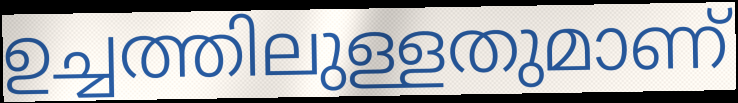
ഉച്ചത്തിലുള്ളതുമാണ്